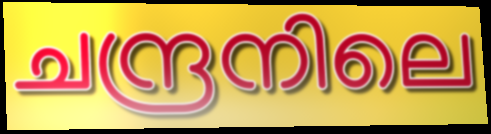
ചന്ദ്രനിലെ